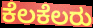
ಕೆಲಕೆಲರು